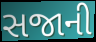
સજાની